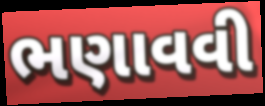
ભણાવવી